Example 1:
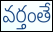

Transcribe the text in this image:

వర్తంతే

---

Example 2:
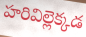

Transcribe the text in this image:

హరివిల్లెక్కడ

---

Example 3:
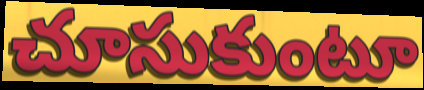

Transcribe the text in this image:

చూసుకుంటూ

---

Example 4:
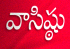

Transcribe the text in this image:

వాసిష్ఠు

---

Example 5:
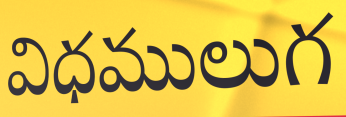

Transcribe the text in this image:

విధములుగ